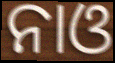
ନାଓ